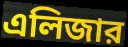
এলিজার